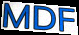
MDF